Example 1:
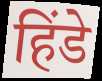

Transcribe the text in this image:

हिंडे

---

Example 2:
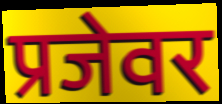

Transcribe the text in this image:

प्रजेवर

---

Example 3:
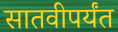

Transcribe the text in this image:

सातवीपर्यंत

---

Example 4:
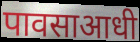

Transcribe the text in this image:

पावसाआधी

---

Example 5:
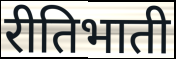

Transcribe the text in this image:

रीतिभाती